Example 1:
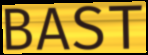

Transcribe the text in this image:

BAST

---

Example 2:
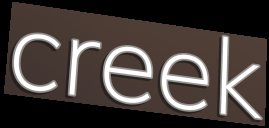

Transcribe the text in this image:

creek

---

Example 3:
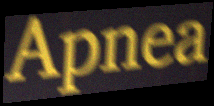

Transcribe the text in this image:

Apnea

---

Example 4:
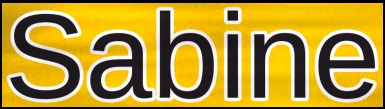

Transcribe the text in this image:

Sabine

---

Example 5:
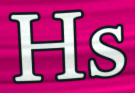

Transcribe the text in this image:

Hs